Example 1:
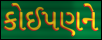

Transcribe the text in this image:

કોઈપણને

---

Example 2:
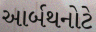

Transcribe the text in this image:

આર્બથનોટે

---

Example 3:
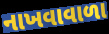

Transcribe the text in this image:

નાખવાવાળા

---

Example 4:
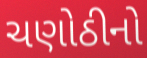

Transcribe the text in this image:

ચણોઠીનો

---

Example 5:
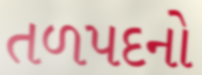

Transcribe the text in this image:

તળપદનો